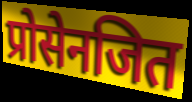
प्रोसेनजित